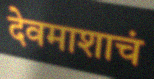
देवमाशाचं